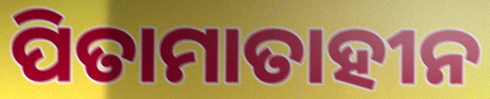
ପିତାମାତାହୀନ